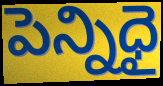
పెన్నిధై